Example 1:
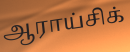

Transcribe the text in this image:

ஆராய்சிக்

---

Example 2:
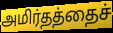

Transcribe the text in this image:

அமிர்தத்தைச்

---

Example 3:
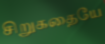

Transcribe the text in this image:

சிறுகதையே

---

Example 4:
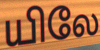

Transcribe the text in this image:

யிலே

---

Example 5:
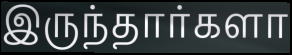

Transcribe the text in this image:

இருந்தார்களா